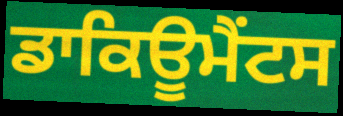
ਡਾਕਿਊਮੈਂਟਸ